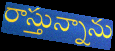
రాస్తున్నాను